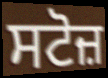
ਸਟੋਜ਼